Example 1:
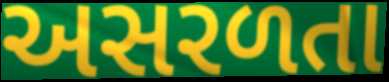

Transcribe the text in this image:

અસરળતા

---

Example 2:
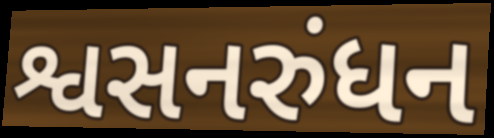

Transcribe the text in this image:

શ્વસનરુંધન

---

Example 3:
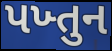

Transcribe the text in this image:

પખ્તુન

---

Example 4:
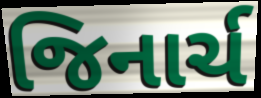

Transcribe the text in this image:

જિનાર્ચ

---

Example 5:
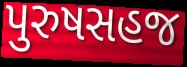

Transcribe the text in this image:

પુરુષસહજ